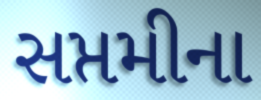
સપ્તમીના